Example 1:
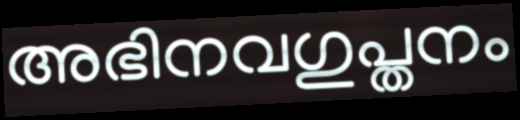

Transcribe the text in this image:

അഭിനവഗുപ്തനം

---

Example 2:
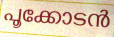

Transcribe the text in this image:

പൂക്കോടൻ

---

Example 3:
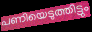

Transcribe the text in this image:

പണിയെടുത്തിട്ടും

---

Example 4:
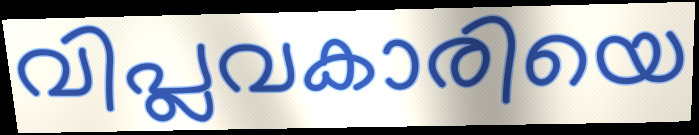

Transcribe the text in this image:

വിപ്ലവകാരിയെ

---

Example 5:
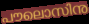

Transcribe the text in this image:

പൗലൊസിനു